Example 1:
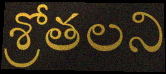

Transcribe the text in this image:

శ్రోతలని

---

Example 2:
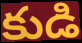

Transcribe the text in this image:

కుడి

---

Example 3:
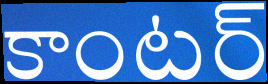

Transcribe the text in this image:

కాంటర్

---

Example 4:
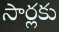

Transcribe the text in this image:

సార్లకు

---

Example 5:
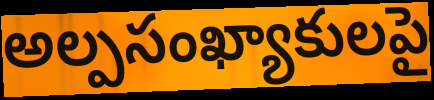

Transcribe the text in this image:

అల్పసంఖ్యాకులపై